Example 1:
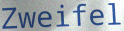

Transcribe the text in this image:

Zweifel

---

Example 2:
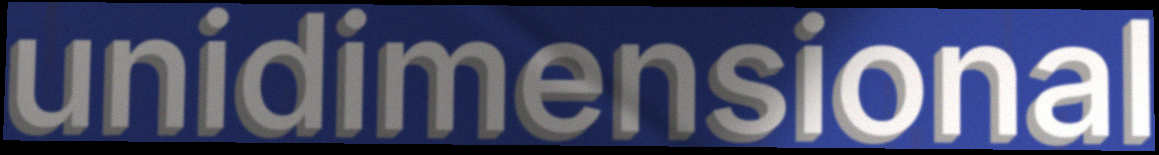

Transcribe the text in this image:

unidimensional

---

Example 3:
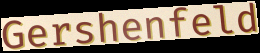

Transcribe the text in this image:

Gershenfeld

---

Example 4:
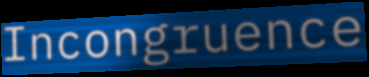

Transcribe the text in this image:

Incongruence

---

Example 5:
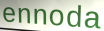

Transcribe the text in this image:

ennoda